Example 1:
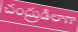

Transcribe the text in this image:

చంద్రుడిలాగా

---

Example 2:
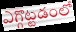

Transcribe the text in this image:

ఎగ్గొట్టడంలో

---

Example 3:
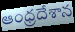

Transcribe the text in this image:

ఆంధ్రదేశాన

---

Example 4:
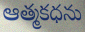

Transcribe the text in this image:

ఆత్మకధను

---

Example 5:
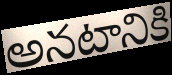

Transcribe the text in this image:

అనటానికి